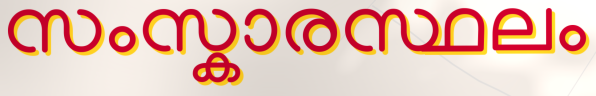
സംസ്കാരസ്ഥലം